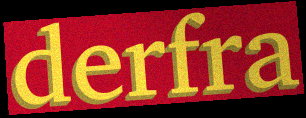
derfra